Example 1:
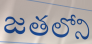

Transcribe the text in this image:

జతలోని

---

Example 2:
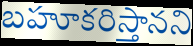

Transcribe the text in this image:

బహూకరిస్తానని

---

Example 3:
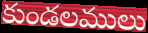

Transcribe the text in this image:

కుండలములు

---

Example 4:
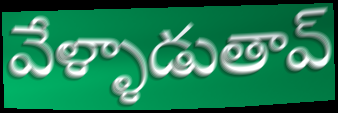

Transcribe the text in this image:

వేళ్ళాడుతావ్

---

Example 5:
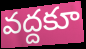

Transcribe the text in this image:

వద్దకూ